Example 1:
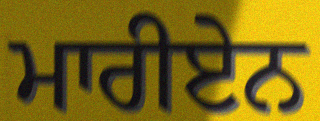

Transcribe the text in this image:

ਮਾਰੀਏਨ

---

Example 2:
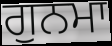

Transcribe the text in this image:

ਗੁਨਮਾ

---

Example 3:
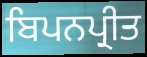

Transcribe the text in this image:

ਬਿਪਨਪ੍ਰੀਤ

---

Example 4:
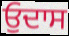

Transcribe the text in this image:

ਓੁਦਾਸ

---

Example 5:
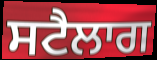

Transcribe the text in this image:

ਸਟੈਲਾਗ